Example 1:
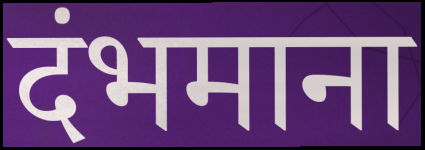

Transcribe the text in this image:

दंभमाना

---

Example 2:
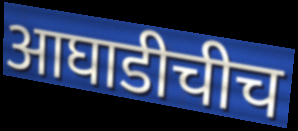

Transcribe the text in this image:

आघाडीचीच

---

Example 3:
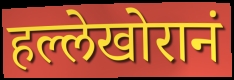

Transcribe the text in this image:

हल्लेखोरानं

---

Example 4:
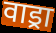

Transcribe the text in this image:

वाड्रा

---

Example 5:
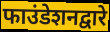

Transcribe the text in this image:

फाउंडेशनद्वारे